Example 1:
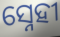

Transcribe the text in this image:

ସ୍ନେହୀ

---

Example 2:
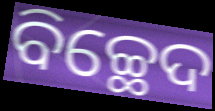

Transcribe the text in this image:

ବିଚ୍ଛେଦ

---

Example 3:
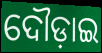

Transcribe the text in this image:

ଦୌଡ଼ାଇ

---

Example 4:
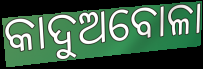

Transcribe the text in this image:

କାଦୁଅବୋଳା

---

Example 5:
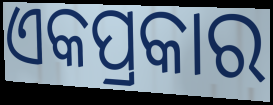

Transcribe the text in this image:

ଏକପ୍ରକାର